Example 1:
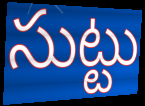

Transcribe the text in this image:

సుట్టు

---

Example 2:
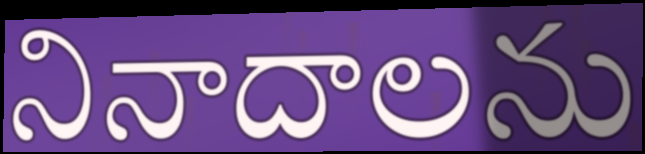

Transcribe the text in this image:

నినాదాలను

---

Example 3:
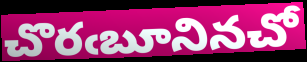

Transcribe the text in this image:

చొరఁబూనినచో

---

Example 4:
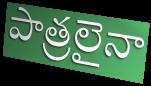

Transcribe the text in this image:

పాత్రలైనా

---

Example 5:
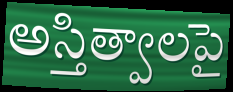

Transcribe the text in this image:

అస్తిత్వాలపై